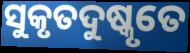
ସୁକୃତଦୁଷ୍କୃତେ